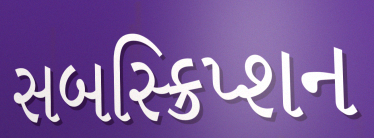
સબસ્ક્રિપ્શન